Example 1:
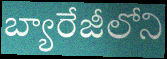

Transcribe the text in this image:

బ్యారేజీలోని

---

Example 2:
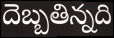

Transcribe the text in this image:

దెబ్బతిన్నది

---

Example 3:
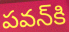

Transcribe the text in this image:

పవన్‌కి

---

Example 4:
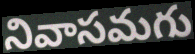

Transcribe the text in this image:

నివాసమగు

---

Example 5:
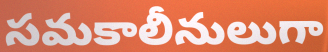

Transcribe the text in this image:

సమకాలీనులుగా